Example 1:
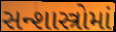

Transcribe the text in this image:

સન્શાસ્ત્રોમાં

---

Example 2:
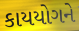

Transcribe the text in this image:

કાયયોગને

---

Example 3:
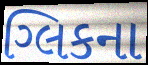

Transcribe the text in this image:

ગ્લિકના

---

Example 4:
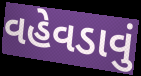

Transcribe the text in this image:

વહેવડાવું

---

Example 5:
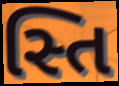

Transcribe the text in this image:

સ્તિ